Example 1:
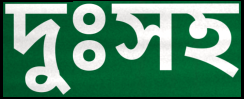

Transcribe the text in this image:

দুঃসহ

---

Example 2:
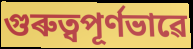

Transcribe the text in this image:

গুৰুত্বপূৰ্ণভাৱে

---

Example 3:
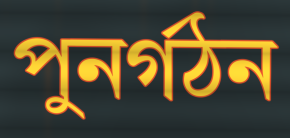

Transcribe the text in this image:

পুনৰ্গঠন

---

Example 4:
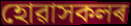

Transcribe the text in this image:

হোৱাসকলৰ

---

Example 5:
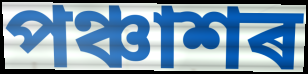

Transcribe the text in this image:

পঞ্চাশৰ